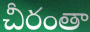
చీరంతా